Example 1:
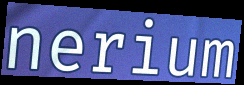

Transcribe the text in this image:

nerium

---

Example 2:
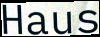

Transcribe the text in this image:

Haus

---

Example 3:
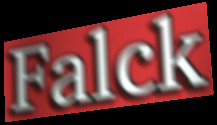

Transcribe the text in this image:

Falck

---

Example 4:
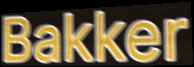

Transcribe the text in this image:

Bakker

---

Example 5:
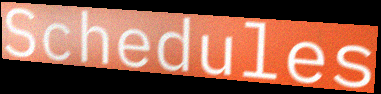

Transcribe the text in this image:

Schedules